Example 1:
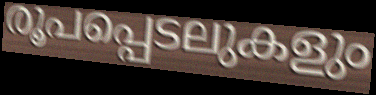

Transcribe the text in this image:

രൂപപ്പെടലുകളും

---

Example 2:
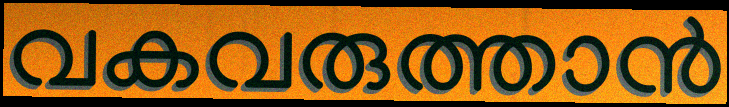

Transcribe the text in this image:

വകവരുത്താൻ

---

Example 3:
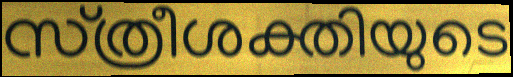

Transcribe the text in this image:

സ്‌ത്രീശക്തിയുടെ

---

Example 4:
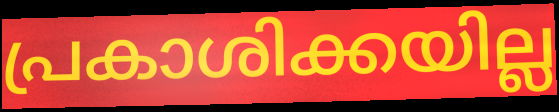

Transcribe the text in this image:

പ്രകാശിക്കയില്ല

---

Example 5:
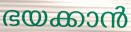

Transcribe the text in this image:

ഭയക്കാൻ